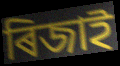
ৰিজাই